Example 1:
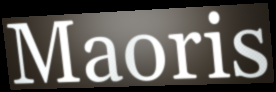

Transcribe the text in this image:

Maoris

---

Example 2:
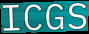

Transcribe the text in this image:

ICGS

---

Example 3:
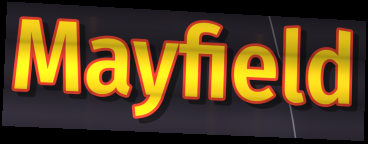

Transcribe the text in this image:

Mayfield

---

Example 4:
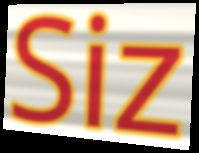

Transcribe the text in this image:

Siz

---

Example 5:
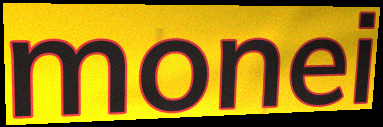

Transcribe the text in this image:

monei